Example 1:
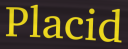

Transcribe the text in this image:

Placid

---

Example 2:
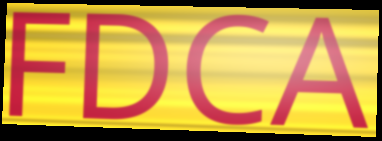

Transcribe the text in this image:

FDCA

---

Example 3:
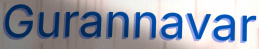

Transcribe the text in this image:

Gurannavar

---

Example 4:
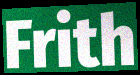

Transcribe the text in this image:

Frith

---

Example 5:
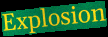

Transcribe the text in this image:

Explosion